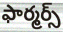
ఫార్మర్స్